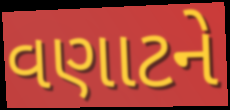
વણાટને